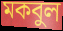
মকবুল